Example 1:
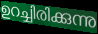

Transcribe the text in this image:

ഉറച്ചിരിക്കുന്നു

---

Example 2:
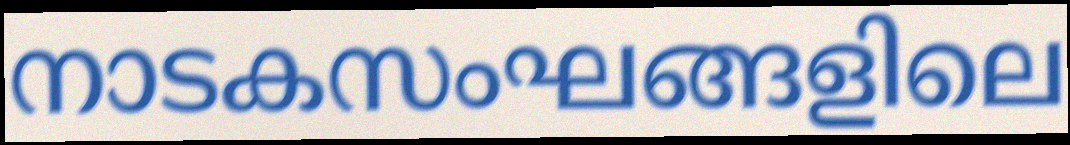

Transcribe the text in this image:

നാടകസംഘങ്ങളിലെ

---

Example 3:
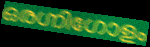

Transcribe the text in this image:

ഒരഗ്നിഗോളം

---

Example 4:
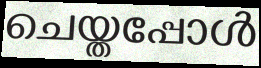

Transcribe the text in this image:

ചെയ്തപ്പോൾ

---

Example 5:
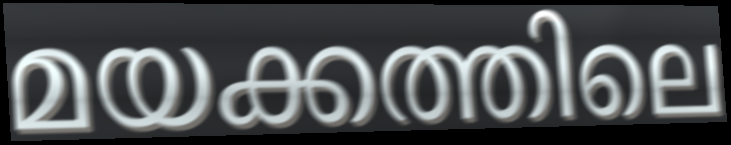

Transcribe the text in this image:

മയക്കത്തിലെ